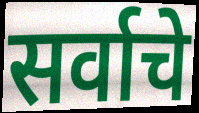
सर्वाचे